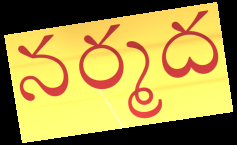
నర్మద